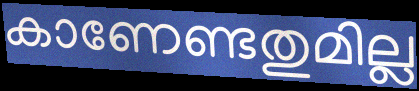
കാണേണ്ടതുമില്ല